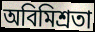
অবিমিশ্রতা